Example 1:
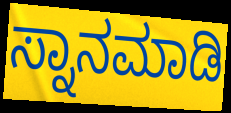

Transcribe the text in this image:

ಸ್ನಾನಮಾಡಿ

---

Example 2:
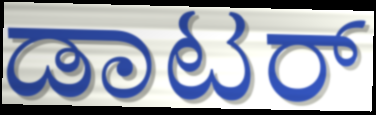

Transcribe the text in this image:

ಡಾಟರ್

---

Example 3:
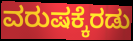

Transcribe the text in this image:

ವರುಷಕ್ಕೆರಡು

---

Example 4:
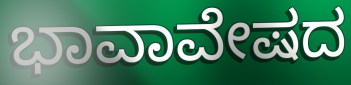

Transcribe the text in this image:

ಭಾವಾವೇಷದ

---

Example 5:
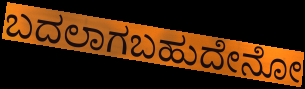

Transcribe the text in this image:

ಬದಲಾಗಬಹುದೇನೋ